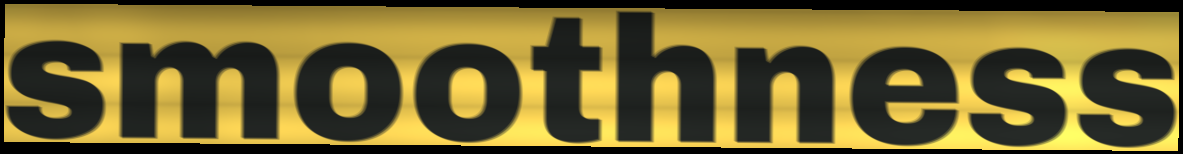
smoothness